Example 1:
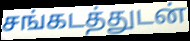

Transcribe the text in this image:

சங்கடத்துடன்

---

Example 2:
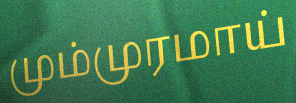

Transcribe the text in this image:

மும்முரமாய்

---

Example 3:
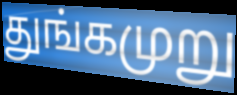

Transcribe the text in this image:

துங்கமுறு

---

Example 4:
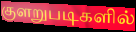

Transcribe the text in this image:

குளறுபடிகளில்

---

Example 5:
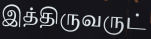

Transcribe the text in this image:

இத்திருவருட்